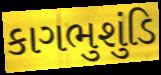
કાગભુશુંડિ